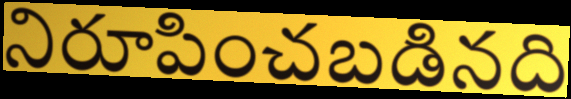
నిరూపించబడినది